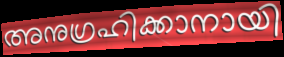
അനുഗ്രഹിക്കാനായി